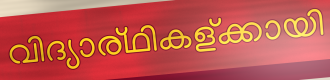
വിദ്യാര്ഥികള്ക്കായി